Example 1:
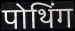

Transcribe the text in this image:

पोथिंग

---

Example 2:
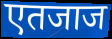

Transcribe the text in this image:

एतजाज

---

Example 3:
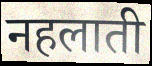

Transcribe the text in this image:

नहलाती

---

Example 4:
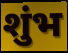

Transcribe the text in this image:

शुंभ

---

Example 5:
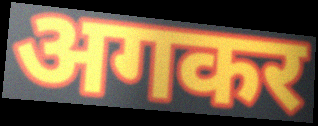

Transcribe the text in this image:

अगकर